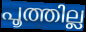
പൂത്തില്ല